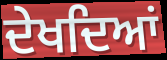
ਦੇਖਦਿਆਂ